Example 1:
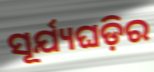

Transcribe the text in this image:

ସୂର୍ଯ୍ୟଘଡ଼ିର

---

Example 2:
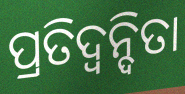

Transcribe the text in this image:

ପ୍ରତିଦ୍ଵନ୍ଦିତା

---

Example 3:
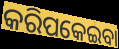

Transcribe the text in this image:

କରିପକେଇବା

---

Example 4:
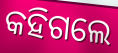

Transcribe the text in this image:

କହିଗଲେ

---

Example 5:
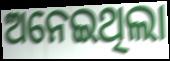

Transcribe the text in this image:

ଅନେଇଥିଲା